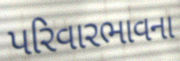
પરિવારભાવના